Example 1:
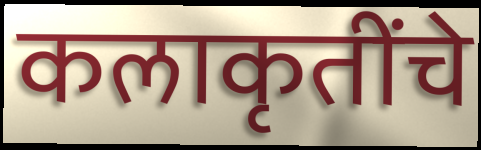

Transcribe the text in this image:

कलाकृतींचे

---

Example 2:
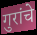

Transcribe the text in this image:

गुरांचे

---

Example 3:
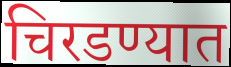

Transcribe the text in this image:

चिरडण्यात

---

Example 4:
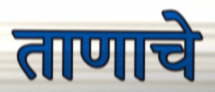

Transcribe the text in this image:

ताणाचे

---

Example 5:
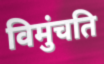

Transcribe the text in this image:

विमुंचति